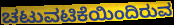
ಚಟುವಟಿಕೆಯಿಂದಿರುವ